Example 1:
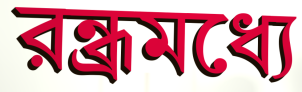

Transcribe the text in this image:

রন্ধ্রমধ্যে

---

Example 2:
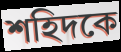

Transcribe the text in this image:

শহিদকে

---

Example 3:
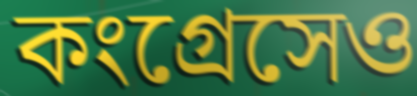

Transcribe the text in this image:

কংগ্রেসেও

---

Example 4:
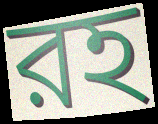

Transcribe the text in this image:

রহ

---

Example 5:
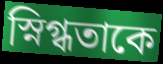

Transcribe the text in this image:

স্নিগ্ধতাকে